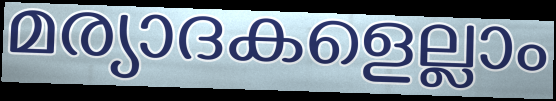
മര്യാദകളെല്ലാം